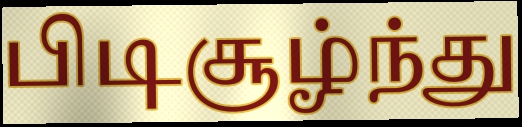
பிடிசூழ்ந்து